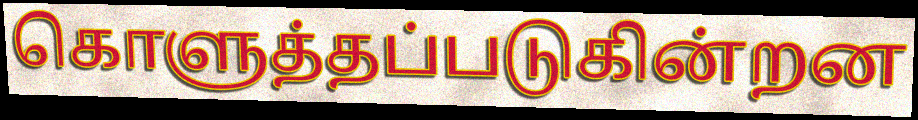
கொளுத்தப்படுகின்றன